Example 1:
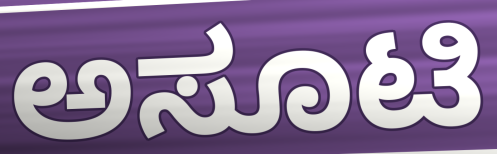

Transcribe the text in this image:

ಅಸೂಟಿ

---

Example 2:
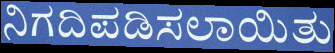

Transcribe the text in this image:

ನಿಗದಿಪಡಿಸಲಾಯಿತು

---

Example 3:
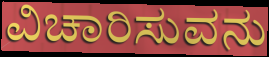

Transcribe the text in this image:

ವಿಚಾರಿಸುವನು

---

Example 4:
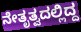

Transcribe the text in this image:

ನೇತೃತ್ವದಲ್ಲಿದ್ದ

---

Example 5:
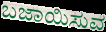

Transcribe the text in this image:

ಬಜಾಯಿಸುವ